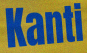
Kanti